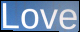
Love